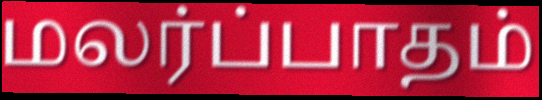
மலர்ப்பாதம்